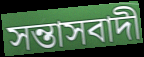
সন্তাসবাদী